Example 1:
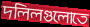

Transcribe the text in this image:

দলিলগুলোতে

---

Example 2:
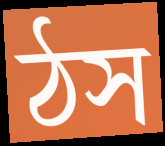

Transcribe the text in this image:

ঠস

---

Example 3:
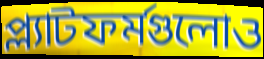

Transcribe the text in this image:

প্ল্যাটফর্মগুলোও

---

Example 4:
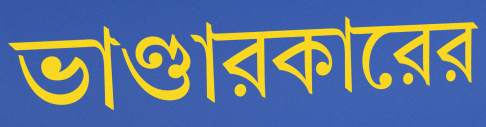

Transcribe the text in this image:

ভাণ্ডারকারের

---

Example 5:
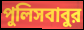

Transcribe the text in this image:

পুলিসবাবুর